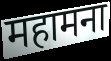
महामना